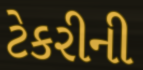
ટેકરીની